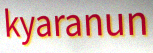
kyaranun